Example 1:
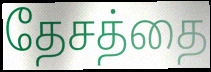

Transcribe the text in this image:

தேசத்தை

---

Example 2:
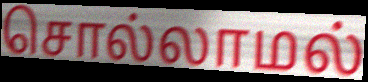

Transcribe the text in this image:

சொல்லாமல்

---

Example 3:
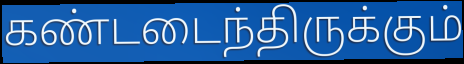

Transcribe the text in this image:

கண்டடைந்திருக்கும்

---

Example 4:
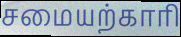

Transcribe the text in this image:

சமையற்காரி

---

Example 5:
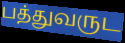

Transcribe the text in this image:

பத்துவருட